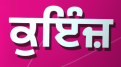
ਕੁਇੰਜ਼